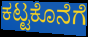
ಕಟ್ಟಕೊನೆಗೆ